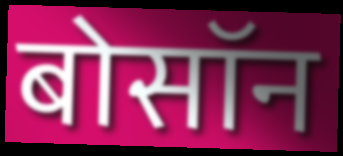
बोसॉन